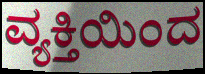
ವ್ಯಕ್ತಿಯಿಂದ